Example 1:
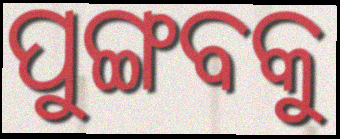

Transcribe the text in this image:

ପୁଙ୍ଗବକୁ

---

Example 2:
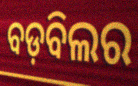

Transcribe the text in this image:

ବଡ଼ବିଲର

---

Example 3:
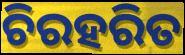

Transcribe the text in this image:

ଚିରହରିତ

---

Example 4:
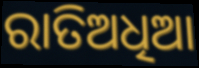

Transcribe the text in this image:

ରାତିଅଧିଆ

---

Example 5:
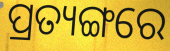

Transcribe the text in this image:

ପ୍ରତ୍ୟଙ୍ଗରେ